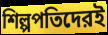
শিল্পপতিদেরই